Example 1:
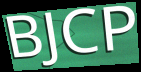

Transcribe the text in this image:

BJCP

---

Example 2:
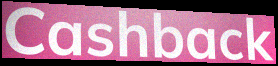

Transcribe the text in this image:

Cashback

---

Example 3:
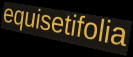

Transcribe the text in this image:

equisetifolia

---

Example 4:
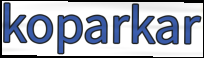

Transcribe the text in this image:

koparkar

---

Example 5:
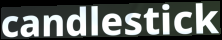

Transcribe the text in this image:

candlestick